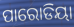
ପାରୋଡିୟା